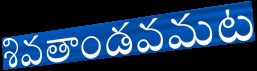
శివతాండవమట